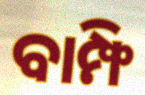
ବାମ୍ଫି